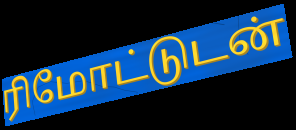
ரிமோட்டுடன்